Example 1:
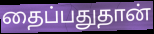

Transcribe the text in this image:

தைப்பதுதான்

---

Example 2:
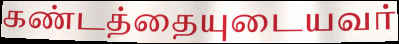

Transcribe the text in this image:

கண்டத்தையுடையவர்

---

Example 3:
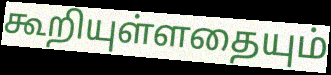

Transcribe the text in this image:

கூறியுள்ளதையும்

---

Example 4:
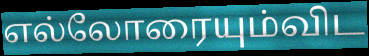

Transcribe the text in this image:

எல்லோரையும்விட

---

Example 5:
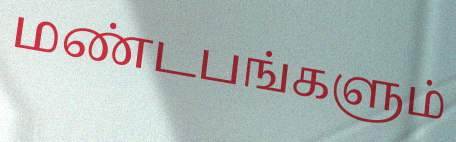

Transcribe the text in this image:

மண்டபங்களும்